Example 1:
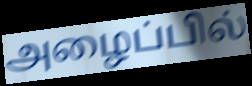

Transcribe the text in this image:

அழைப்பில்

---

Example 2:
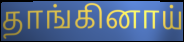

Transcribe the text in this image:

தாங்கினாய்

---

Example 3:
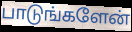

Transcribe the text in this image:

பாடுங்களேன்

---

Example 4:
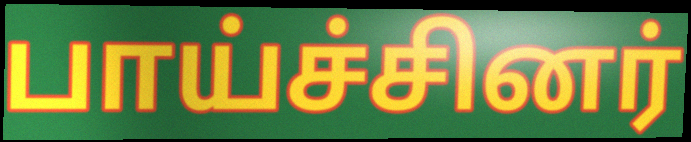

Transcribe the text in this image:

பாய்ச்சினர்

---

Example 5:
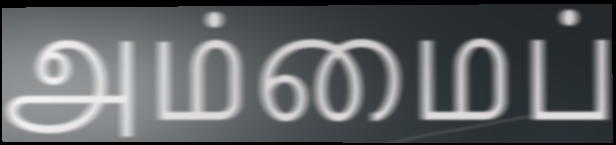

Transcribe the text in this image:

அம்மைப்